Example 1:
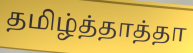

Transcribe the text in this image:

தமிழ்த்தாத்தா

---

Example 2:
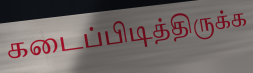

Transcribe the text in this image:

கடைப்பிடித்திருக்க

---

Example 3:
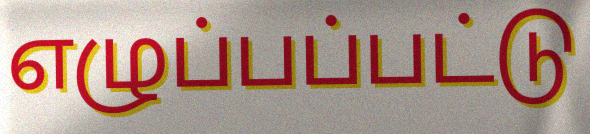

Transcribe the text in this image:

எழுப்பப்பட்டு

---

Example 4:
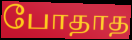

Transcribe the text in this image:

போதாத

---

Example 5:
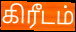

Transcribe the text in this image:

கிரீடம்